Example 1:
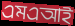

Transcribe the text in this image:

এমএআই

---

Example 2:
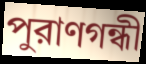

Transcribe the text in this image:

পুরাণগন্ধী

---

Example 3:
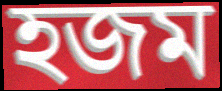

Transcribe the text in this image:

হজম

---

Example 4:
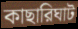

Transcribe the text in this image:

কাছারিঘাট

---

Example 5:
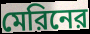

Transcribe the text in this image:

মেরিনের